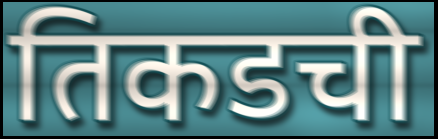
तिकडची